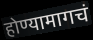
होण्यामागचं